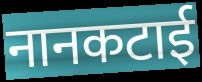
नानकटाई